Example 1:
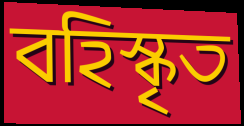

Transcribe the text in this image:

বহিস্কৃত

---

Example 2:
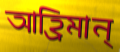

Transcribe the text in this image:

আহ্রিমান্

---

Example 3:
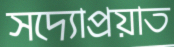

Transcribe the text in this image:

সদ্যোপ্রয়াত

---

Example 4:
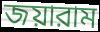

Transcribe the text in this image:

জয়ারাম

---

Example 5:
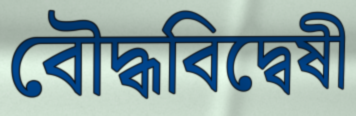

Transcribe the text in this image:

বৌদ্ধবিদ্বেষী